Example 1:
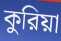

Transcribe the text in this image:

কুরিয়া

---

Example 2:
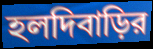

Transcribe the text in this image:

হলদিবাড়ির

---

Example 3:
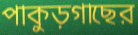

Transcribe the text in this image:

পাকুড়গাছের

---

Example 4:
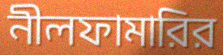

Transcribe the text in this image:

নীলফামারির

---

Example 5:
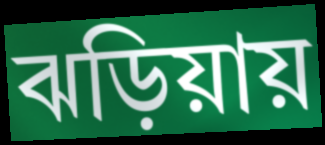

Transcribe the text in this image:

ঝড়িয়ায়